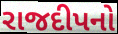
રાજદીપનો